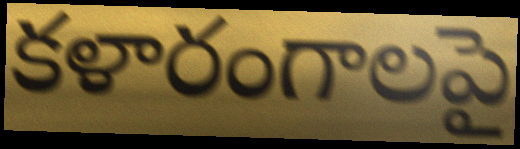
కళారంగాలపై